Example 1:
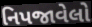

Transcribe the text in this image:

નિપજાવેલો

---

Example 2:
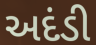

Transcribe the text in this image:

અદંડી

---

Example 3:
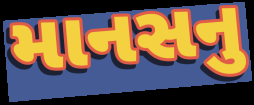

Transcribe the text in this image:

માનસનુ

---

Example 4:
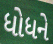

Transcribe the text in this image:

ધોધને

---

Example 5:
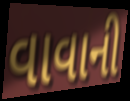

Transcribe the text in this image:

વાવાની